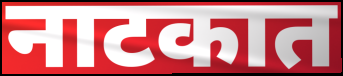
नाटकात